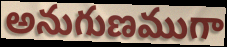
అనుగుణముగా